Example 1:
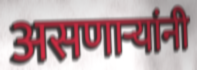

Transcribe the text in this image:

असणाऱ्यांनी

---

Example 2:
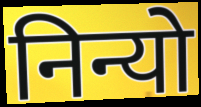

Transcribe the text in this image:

निन्यो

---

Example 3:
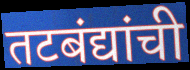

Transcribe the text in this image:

तटबंद्यांची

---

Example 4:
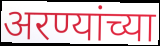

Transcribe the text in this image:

अरण्यांच्या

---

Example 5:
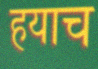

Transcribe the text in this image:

हयाच